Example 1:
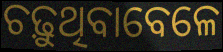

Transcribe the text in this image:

ଚଢ଼ୁଥିବାବେଳେ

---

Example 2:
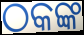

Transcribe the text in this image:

ଠକଙ୍କ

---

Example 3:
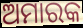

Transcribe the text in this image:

ଅମାରକ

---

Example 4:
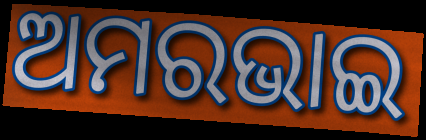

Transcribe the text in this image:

ଅମରଭାଇ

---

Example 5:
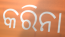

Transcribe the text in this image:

କରିନା